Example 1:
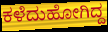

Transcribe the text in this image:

ಕಳೆದುಹೋಗಿದ್ದ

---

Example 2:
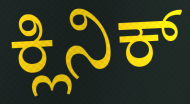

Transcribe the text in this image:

ಕ್ಲಿನಿಕ್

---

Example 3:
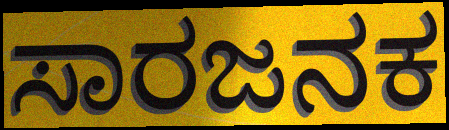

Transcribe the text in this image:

ಸಾರಜನಕ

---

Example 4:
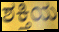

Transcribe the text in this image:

ಶಕ್ತಿಯ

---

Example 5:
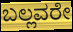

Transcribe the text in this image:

ಬಲ್ಲವರೇ